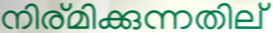
നിര്മിക്കുന്നതില്